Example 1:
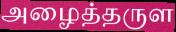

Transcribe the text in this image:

அழைத்தருள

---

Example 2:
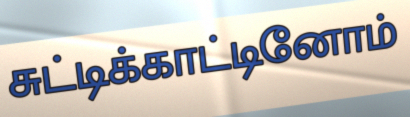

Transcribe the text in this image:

சுட்டிக்காட்டினோம்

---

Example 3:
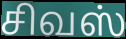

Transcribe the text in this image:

சிவஸ்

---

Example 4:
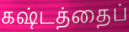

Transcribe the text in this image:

கஷ்டத்தைப்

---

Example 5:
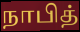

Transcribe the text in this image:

நாபித்